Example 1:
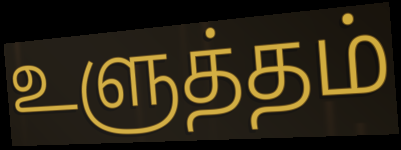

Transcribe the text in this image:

உளுத்தம்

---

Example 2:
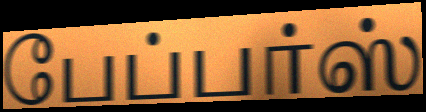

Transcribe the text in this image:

பேப்பர்ஸ்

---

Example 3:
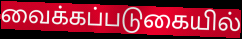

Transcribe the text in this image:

வைக்கப்படுகையில்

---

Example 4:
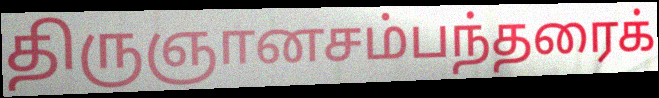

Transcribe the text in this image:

திருஞானசம்பந்தரைக்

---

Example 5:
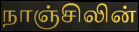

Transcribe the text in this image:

நாஞ்சிலின்